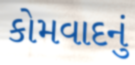
કોમવાદનું